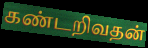
கண்டறிவதன்